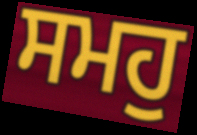
ਸਮਹੁ